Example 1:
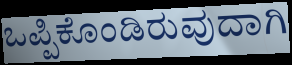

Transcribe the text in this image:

ಒಪ್ಪಿಕೊಂಡಿರುವುದಾಗಿ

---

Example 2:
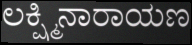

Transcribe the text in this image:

ಲಕ್ಷ್ಮಿನಾರಾಯಣ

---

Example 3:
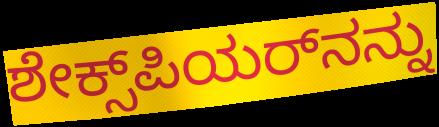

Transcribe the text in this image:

ಶೇಕ್ಸ್‌ಪಿಯರ್‌ನನ್ನು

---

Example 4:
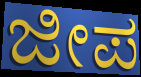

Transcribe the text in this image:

ಜೀಪ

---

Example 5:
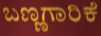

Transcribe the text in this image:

ಬಣ್ಣಗಾರಿಕೆ